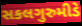
સકલગુરુમીડે